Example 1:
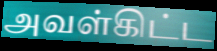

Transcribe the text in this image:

அவள்கிட்ட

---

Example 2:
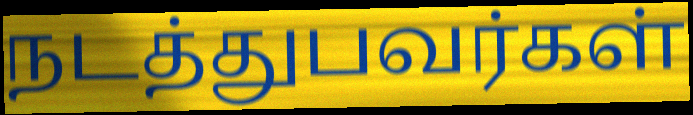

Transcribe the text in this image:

நடத்துபவர்கள்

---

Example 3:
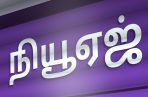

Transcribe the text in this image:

நியூஏஜ்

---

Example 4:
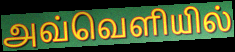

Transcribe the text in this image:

அவ்வெளியில்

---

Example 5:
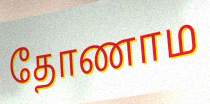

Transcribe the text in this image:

தோணாம